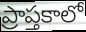
ప్రాప్తకాలో